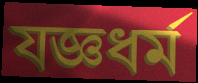
যজ্ঞধর্ম